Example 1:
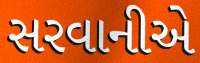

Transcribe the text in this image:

સરવાનીએ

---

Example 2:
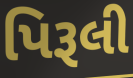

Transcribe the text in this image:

પિરૂલી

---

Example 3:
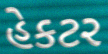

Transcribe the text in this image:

હેકટર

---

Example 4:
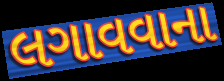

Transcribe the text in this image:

લગાવવાના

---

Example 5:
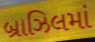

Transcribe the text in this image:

બ્રાઝિલમાં